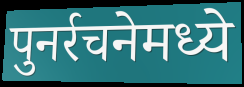
पुनर्रचनेमध्ये